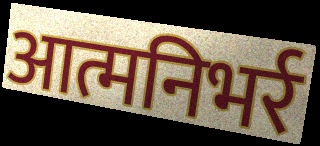
आत्मनिभर्र